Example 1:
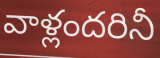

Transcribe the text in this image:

వాళ్లందరినీ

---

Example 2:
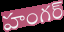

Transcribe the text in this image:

హంగర్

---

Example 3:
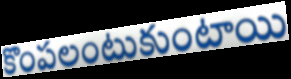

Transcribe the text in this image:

కొంపలంటుకుంటాయి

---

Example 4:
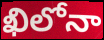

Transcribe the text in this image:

ఖిలోనా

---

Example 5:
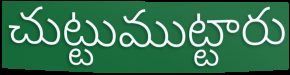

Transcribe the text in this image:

చుట్టుముట్టారు